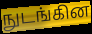
நுடங்கின